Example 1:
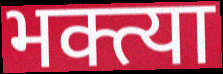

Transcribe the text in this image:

भक्त्या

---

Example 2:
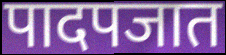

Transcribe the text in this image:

पादपजात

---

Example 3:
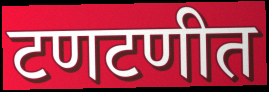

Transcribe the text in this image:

टणटणीत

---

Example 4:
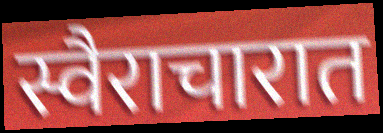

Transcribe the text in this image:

स्वैराचारात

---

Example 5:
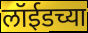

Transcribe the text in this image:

लॉईडच्या